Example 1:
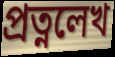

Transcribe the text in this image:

প্রত্নলেখ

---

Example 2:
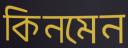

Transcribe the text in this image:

কিনমেন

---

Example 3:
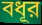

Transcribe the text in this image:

বধূর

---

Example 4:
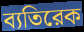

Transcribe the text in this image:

ব্যতিরেক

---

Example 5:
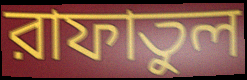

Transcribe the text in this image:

রাফাতুল